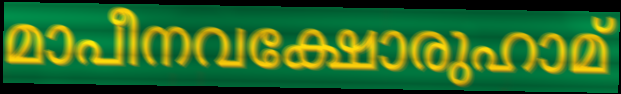
മാപീനവക്ഷോരുഹാമ്